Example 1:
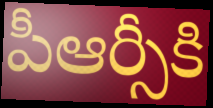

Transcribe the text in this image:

పీఆర్సీకి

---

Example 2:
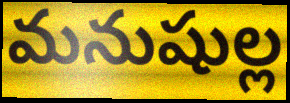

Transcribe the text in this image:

మనుషుల్ల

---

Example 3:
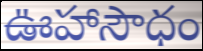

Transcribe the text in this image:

ఊహాసౌధం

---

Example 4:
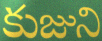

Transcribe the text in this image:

కుజుని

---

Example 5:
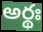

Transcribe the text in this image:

అర్థః